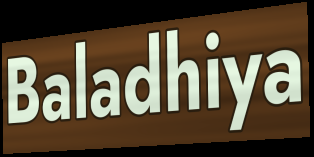
Baladhiya